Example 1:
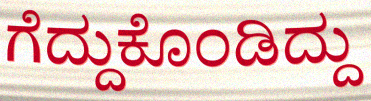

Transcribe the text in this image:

ಗೆದ್ದುಕೊಂಡಿದ್ದು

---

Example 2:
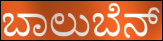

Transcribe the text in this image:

ಬಾಲುಬೆನ್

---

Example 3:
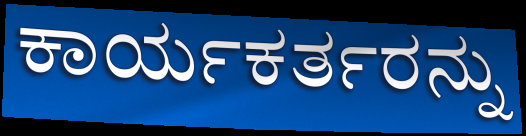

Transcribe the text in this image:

ಕಾರ್ಯಕರ್ತರನ್ನು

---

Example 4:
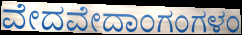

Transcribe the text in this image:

ವೇದವೇದಾಂಗಂಗಳಂ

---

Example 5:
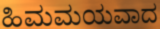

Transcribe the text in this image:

ಹಿಮಮಯವಾದ